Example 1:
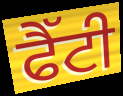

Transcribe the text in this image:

ਫੈੱਟੀ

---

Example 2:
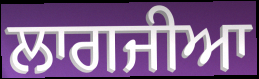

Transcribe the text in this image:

ਲਾਗਜੀਆ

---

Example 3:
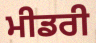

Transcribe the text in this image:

ਮੀਡਰੀ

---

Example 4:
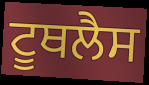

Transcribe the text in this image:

ਟੂਥਲੈਸ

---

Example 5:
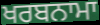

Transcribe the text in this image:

ਖਰਬਨਾਮਾ